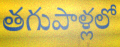
తగుపాళ్లలో